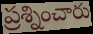
ప్రశ్నించారు